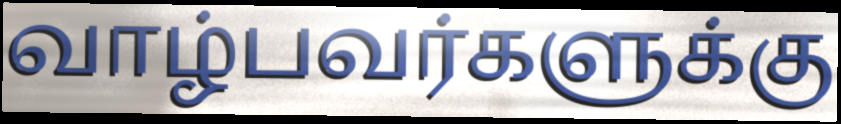
வாழ்பவர்களுக்கு